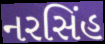
નરસિંહ